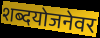
शब्दयोजनेवर